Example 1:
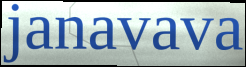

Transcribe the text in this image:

janavava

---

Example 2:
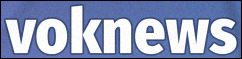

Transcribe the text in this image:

voknews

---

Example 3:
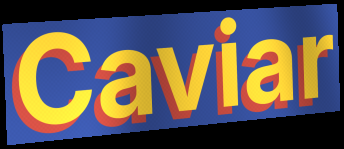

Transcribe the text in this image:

Caviar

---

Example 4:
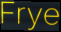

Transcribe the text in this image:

Frye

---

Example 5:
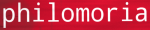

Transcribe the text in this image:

philomoria